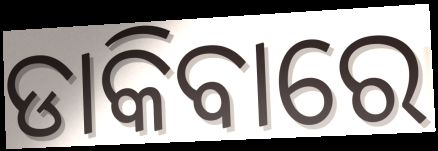
ଡାକିବାରେ